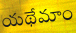
యథేమాం